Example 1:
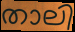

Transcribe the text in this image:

താലി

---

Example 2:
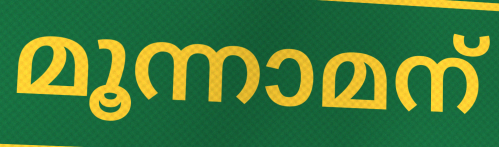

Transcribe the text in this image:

മൂന്നാമന്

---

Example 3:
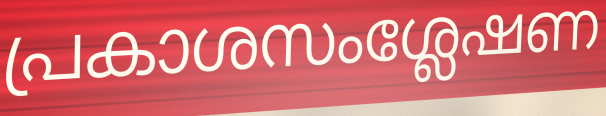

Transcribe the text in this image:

പ്രകാശസംശ്ലേഷണ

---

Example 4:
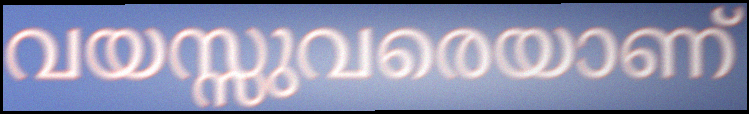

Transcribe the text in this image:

വയസ്സുവരെയാണ്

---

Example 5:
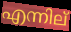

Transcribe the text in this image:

എന്നില്